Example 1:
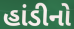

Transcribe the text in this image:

હાંડીનો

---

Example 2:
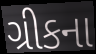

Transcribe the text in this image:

ગ્રીકના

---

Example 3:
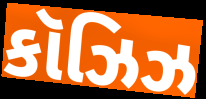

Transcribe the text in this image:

કૉઝિઝ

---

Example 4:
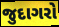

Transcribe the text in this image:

જુદાગરો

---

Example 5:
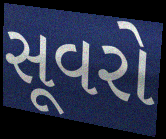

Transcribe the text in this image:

સૂવરો